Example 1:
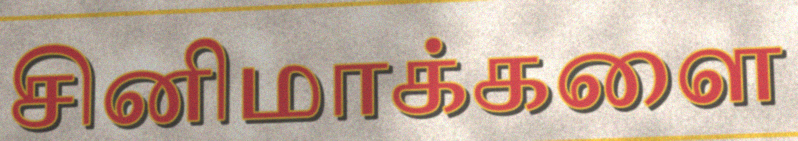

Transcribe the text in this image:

சினிமாக்களை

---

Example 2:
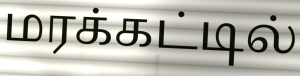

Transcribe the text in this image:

மரக்கட்டில்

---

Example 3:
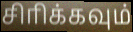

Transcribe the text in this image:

சிரிக்கவும்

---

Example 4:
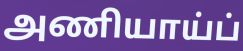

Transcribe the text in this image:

அணியாய்ப்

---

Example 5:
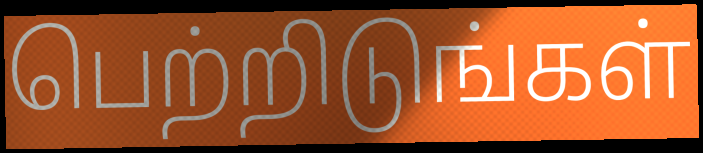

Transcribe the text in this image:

பெற்றிடுங்கள்